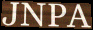
JNPA